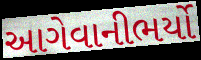
આગેવાનીભર્યો